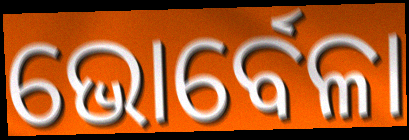
ଭୋର୍ବେଳା